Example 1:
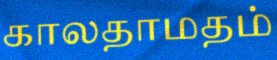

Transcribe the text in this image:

காலதாமதம்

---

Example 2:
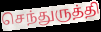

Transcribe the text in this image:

செந்துருத்தி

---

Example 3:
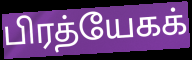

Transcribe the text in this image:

பிரத்யேகக்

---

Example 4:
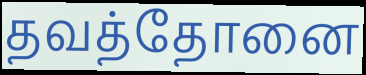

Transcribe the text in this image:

தவத்தோனை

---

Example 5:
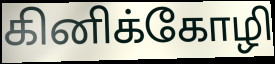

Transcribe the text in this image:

கினிக்கோழி